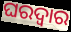
ଘରଦ୍ବାର